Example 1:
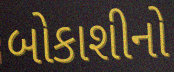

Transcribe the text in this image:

બોકાશીનો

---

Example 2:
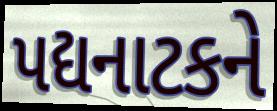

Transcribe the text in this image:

પદ્યનાટકને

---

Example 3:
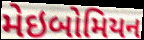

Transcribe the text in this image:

મેઇબોમિયન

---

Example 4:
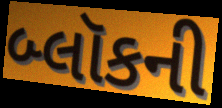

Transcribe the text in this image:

બ્લૉકની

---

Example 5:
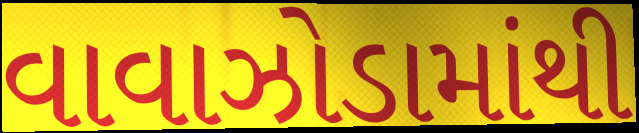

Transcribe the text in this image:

વાવાઝોડામાંથી